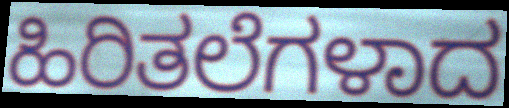
ಹಿರಿತಲೆಗಳಾದ